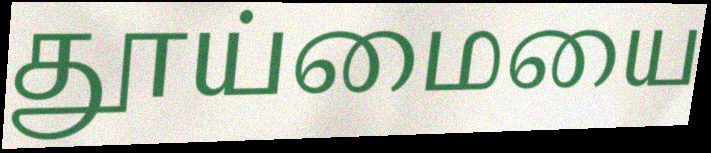
தூய்மையை